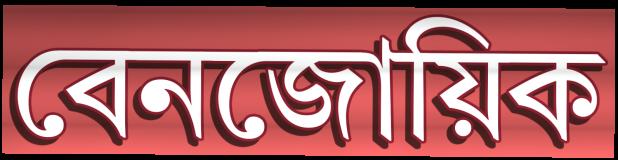
বেনজোয়িক